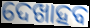
ଦେଖାହବ